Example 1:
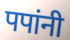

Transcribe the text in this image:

पपांनी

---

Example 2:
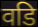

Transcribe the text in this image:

वडि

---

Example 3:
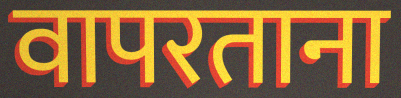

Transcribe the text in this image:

वापरताना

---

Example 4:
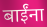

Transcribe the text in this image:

बाईंना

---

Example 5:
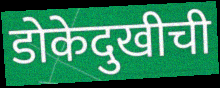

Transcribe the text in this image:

डोकेदुखीची